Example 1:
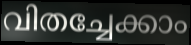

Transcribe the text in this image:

വിതച്ചേക്കാം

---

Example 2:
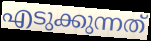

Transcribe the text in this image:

എടുക്കുന്നത്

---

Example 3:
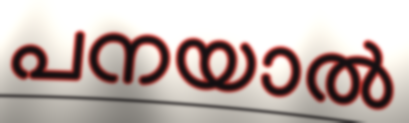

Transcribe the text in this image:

പനയാൽ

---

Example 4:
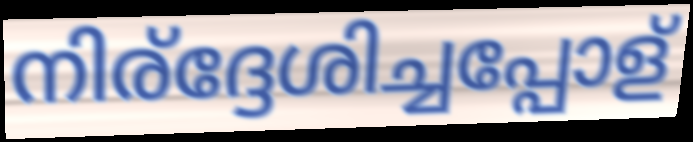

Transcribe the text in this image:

നിര്ദ്ദേശിച്ചപ്പോള്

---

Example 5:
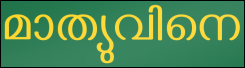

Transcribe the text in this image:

മാത്യുവിനെ